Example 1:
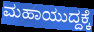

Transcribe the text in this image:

ಮಹಾಯುದ್ದಕ್ಕೆ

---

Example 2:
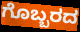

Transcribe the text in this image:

ಗೊಬ್ಬರದ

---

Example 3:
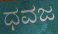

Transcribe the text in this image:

ಧವಜ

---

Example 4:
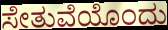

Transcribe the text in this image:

ಸೇತುವೆಯೊಂದು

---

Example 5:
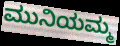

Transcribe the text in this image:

ಮುನಿಯಮ್ಮ